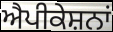
ਐਪੀਕੇਸ਼ਨਾਂ